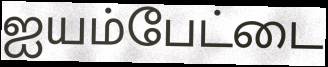
ஐயம்பேட்டை